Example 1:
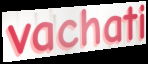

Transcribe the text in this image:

vachati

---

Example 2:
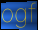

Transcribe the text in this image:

ogf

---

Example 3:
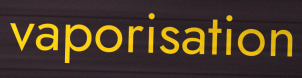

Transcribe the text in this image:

vaporisation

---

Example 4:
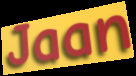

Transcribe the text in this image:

Jaan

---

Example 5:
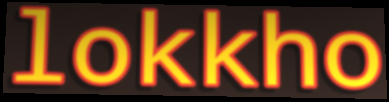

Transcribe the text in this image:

lokkho